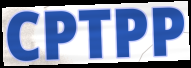
CPTPP